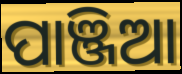
ପାଞ୍ଜିଆ